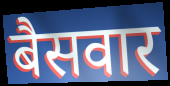
बैसवार